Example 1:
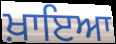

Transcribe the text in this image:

ਖ਼ਾਇਆ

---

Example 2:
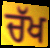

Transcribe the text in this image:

ਚੱਖ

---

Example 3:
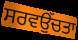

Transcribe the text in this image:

ਸਰਵਉੱਚਤਾ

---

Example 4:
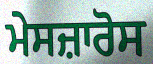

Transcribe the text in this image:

ਮੇਸਜ਼ਾਰੋਸ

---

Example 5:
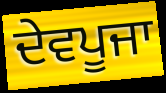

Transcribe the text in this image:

ਦੇਵਪੂਜਾ